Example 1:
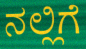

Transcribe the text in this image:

ನಲ್ಲಿಗೆ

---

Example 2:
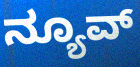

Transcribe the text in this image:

ನ್ಯೂವ್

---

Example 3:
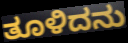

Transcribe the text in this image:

ತೂಳಿದನು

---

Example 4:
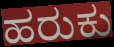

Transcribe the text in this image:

ಹರುಕು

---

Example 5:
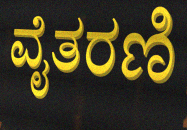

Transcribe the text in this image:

ವೈತರಣಿ